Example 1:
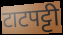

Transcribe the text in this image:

टाटपट्टी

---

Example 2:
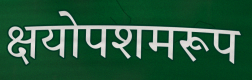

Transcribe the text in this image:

क्षयोपशमरूप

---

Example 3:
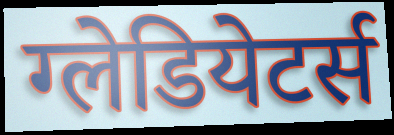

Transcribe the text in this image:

ग्लेडियेटर्स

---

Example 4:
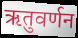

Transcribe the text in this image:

ऋतुवर्णन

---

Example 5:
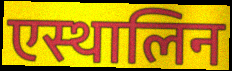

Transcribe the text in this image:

एस्थालिन